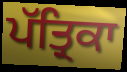
ਪੱਤ੍ਰਿਕਾ